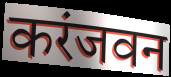
करंजवन